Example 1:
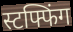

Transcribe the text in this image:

स्टफ्फिंग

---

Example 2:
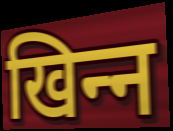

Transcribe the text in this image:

खिन्‍न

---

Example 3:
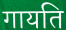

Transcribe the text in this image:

गायति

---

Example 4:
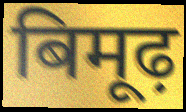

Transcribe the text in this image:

बिमूढ़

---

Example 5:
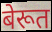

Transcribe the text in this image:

बेरूत